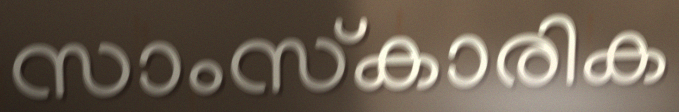
സാംസ്‌കാരിക